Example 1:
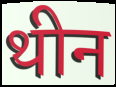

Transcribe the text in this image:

थीन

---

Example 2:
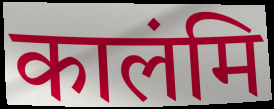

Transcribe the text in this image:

कालंमि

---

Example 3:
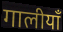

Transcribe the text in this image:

गालीयाँ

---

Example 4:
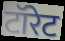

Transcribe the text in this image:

टॉरेट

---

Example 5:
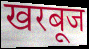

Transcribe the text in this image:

खरबूज